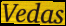
Vedas